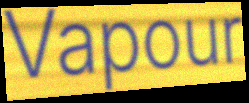
Vapour